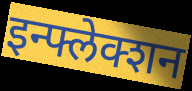
इन्फ्लेक्शन